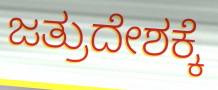
ಜತ್ರುದೇಶಕ್ಕೆ